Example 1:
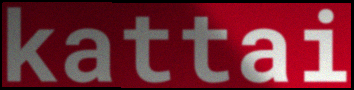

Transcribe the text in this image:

kattai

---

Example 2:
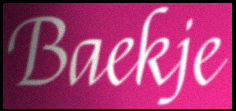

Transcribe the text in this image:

Baekje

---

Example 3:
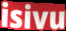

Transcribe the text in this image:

isivu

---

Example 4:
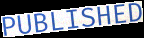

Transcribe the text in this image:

PUBLISHED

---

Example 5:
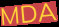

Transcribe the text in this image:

MDA